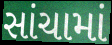
સાંચામાં